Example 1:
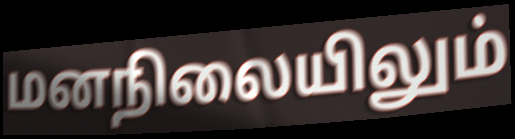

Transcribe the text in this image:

மனநிலையிலும்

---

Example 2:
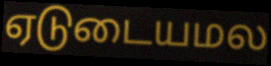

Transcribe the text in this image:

ஏடுடையமல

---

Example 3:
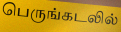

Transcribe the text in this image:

பெருங்கடலில்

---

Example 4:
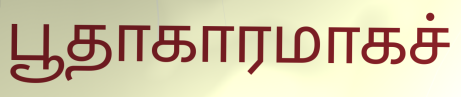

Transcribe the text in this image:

பூதாகாரமாகச்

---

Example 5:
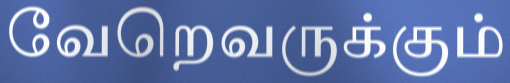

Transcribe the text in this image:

வேறெவருக்கும்